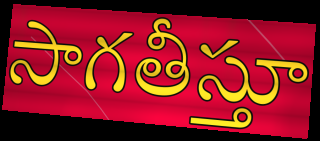
సాగతీస్తూ